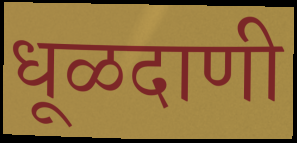
धूळदाणी